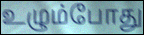
உழும்போது